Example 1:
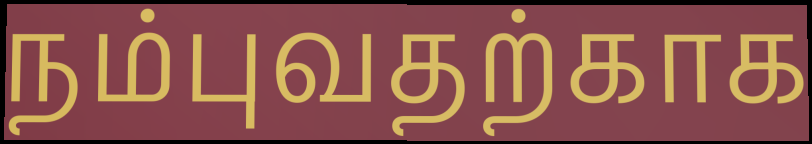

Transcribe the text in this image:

நம்புவதற்காக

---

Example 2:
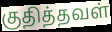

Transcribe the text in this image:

குதித்தவள்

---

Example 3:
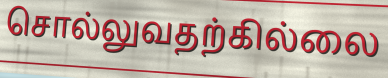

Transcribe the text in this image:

சொல்லுவதற்கில்லை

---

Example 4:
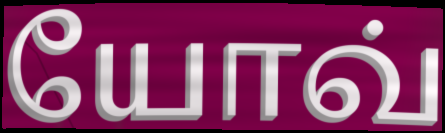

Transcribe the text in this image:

யோவ்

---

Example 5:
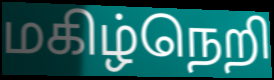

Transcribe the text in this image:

மகிழ்நெறி